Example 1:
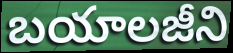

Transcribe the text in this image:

బయాలజీని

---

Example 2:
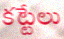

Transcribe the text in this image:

కట్టేలు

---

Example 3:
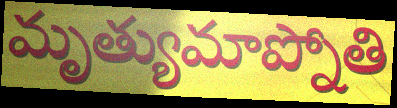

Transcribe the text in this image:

మృత్యుమాప్నోతి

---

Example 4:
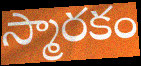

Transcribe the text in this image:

స్మారకం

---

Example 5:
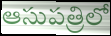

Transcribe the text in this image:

ఆసుపత్రిలో